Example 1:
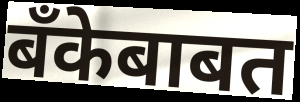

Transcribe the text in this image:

बँकेबाबत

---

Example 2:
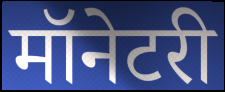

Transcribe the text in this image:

मॉनेटरी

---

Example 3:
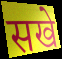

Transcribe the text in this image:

सखे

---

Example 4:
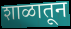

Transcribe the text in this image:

शाळातून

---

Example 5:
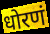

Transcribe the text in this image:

धोरणं